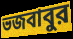
ভজবাবুর